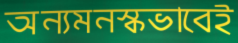
অন্যমনস্কভাবেই